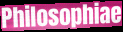
Philosophiae